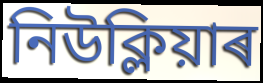
নিউক্লিয়াৰ